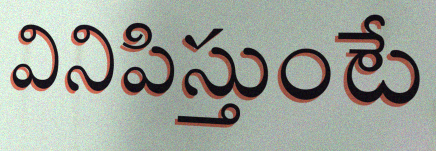
వినిపిస్తుంటే